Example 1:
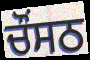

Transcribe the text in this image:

ਚੌਂਸਠ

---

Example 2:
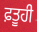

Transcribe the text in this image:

ਫ਼ਤੂਹੀ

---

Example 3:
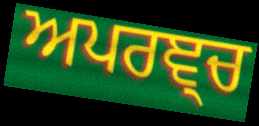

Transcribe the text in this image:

ਅਪਰਞ੍ਚ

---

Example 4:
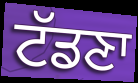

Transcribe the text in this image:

ਟੱਡਣਾ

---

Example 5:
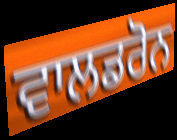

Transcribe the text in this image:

ਵਾਲਡਰੋਨ